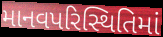
માનવપરિસ્થિતિમાં